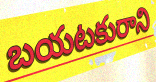
బయటకురాని